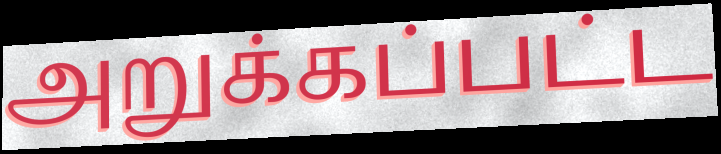
அறுக்கப்பட்ட